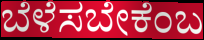
ಬೆಳೆಸಬೇಕೆಂಬ